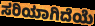
ಸರಿಯಾಗಿದೆಯೆ